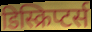
डिस्क्रिप्टर्स